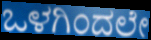
ಒಳಗಿಂದಲೇ